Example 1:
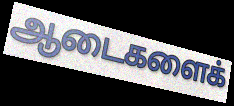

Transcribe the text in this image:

ஆடைகளைக்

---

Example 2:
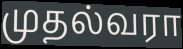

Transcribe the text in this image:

முதல்வரா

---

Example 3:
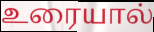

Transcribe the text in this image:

உரையால்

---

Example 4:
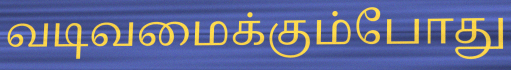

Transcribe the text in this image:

வடிவமைக்கும்போது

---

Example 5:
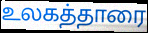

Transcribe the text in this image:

உலகத்தாரை